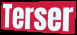
Terser